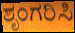
ಶೃಂಗರಿಸಿ